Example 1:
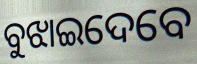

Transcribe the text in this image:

ବୁଝାଇଦେବେ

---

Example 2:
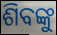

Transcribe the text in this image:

ଶିବଙ୍କୁ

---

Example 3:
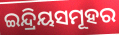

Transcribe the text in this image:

ଇନ୍ଦ୍ରିୟସମୂହର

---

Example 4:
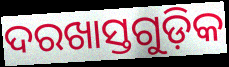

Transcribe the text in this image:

ଦରଖାସ୍ତଗୁଡ଼ିକ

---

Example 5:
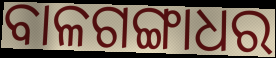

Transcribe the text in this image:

ବାଳଗଙ୍ଗାଧର